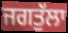
ਜਗਤੁੱਲਾ